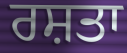
ਰਸ਼ਤਾ